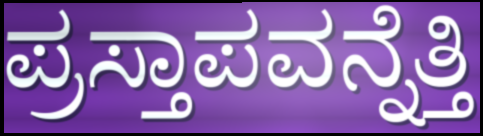
ಪ್ರಸ್ತಾಪವನ್ನೆತ್ತಿ